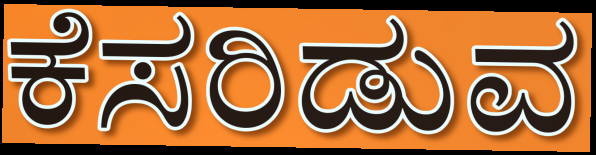
ಕೆಸರಿಡುವ